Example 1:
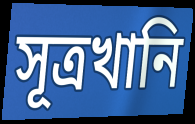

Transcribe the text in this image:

সূত্রখানি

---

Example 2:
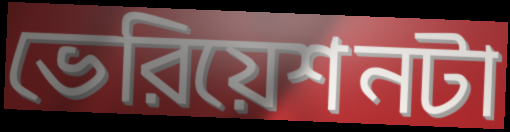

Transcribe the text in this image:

ভেরিয়েশনটা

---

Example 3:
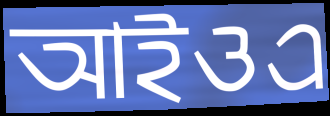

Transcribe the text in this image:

আইওএ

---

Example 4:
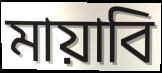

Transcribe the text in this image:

মায়াবি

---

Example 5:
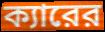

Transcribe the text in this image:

ক্যারের